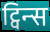
ट्विन्स